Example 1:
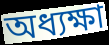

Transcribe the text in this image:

অধ্যক্ষা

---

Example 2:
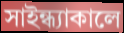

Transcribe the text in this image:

সাইন্ধ্যাকালে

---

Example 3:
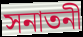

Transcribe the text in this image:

সনাতনী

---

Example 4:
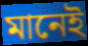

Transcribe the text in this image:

মানেই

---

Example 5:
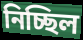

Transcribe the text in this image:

নিচ্ছিল